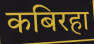
कबिरहा